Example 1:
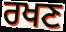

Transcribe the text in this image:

ਰਖਣ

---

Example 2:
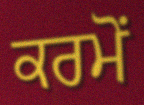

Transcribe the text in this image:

ਕਰਮੋਂ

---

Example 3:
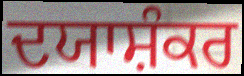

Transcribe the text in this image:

ਦਯਾਸ਼ੰਕਰ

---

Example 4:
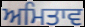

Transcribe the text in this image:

ਅਮਿਤਾਵ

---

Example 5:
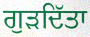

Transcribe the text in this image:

ਗੁੜਦਿੱਤਾ